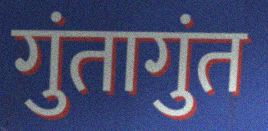
गुंतागुंत